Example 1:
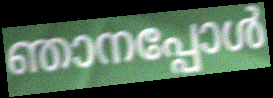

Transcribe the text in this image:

ഞാനപ്പോൾ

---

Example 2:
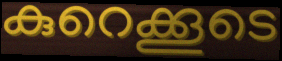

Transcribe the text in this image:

കുറെക്കൂടെ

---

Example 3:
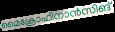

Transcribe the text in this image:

മൈക്രോഫിനാൻസിങ്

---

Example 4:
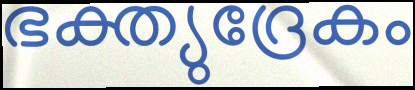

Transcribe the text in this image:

ഭക്ത്യുദ്രേകം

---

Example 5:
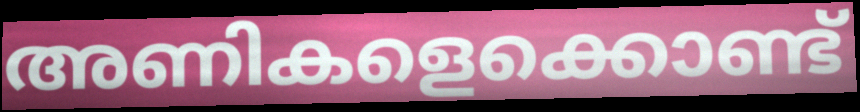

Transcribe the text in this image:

അണികളെക്കൊണ്ട്